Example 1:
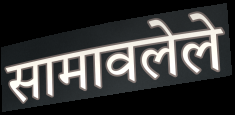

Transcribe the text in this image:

सामावलेले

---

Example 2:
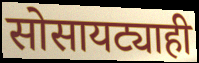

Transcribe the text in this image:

सोसायट्याही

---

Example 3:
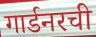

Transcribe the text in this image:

गार्डनरची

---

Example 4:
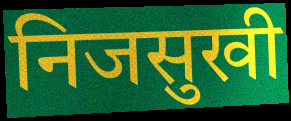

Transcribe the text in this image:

निजसुखी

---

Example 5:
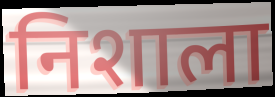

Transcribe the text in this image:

निशाला